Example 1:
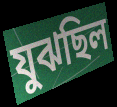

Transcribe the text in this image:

যুঝছিল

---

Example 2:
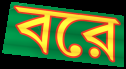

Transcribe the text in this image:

বরে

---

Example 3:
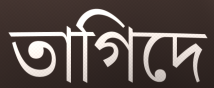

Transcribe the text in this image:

তাগিদে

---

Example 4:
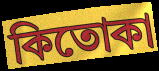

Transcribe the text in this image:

কিতোকা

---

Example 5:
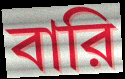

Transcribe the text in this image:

বারি